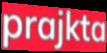
prajkta